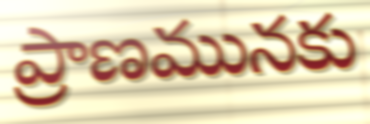
ప్రాణమునకు